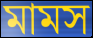
মামস